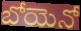
బోయెనో